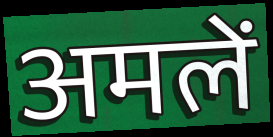
अमलें